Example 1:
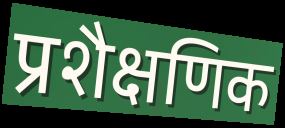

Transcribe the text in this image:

प्रशैक्षणिक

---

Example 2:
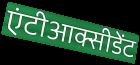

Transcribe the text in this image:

एंटीआक्सीडेंट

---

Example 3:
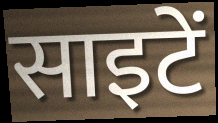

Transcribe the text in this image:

साइटें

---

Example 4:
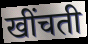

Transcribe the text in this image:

खींचती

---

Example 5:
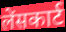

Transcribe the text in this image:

लेंसकार्ट